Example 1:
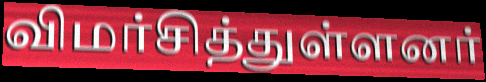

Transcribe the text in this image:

விமர்சித்துள்ளனர்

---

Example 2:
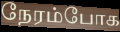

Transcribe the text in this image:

நேரம்போக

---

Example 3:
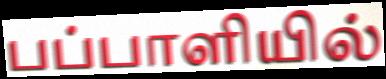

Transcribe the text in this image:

பப்பாளியில்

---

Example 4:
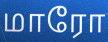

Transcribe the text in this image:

மாரோ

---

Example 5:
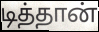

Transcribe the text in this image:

டித்தான்